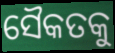
ସୈକତକୁ